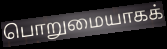
பொறுமையாகக்